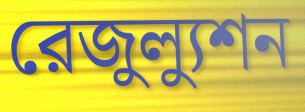
রেজুল্যুশন